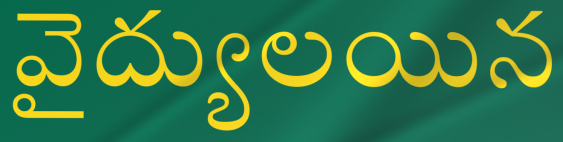
వైద్యులయిన